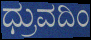
ಧ್ರುವದಿಂ